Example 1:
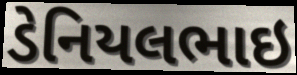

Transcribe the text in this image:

ડેનિયલભાઇ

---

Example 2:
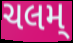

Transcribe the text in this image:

ચલમ્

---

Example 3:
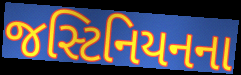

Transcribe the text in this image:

જસ્ટિનિયનના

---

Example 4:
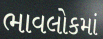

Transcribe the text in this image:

ભાવલોકમાં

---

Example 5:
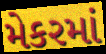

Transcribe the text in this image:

મેકરમાં